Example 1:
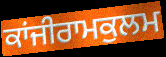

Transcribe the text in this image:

ਕਾਂਜੀਰਾਮਕੁਲਮ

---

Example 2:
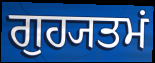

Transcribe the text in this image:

ਗੁਹ੍ਯਤਮਂ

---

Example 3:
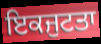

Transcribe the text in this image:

ਇਕਜੁਟਤਾ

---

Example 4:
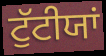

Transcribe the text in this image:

ਟੁੱਟੀਯਾਂ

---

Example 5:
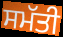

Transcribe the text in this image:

ਸਮੱਤੀ